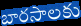
బారసాలకు